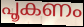
പൂകണം